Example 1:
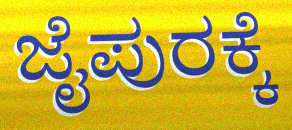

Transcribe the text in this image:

ಜೈಪುರಕ್ಕೆ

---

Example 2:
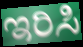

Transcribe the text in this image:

ಇರಿಸಿ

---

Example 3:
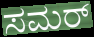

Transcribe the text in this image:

ಸಮರ್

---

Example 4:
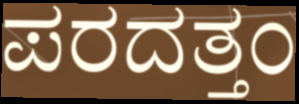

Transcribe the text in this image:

ಪರದತ್ತಂ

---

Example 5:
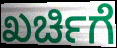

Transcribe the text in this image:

ಖರ್ಚಿಗೆ